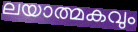
ലയാത്മകവും